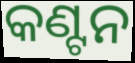
କଣ୍ଟନ